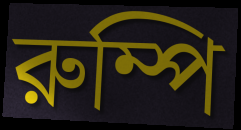
রুম্পি